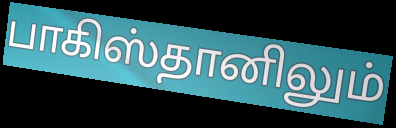
பாகிஸ்தானிலும்